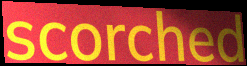
scorched